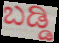
ಬಡ್ಡಿ